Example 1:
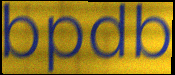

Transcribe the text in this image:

bpdb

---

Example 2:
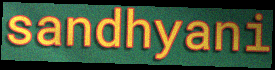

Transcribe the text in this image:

sandhyani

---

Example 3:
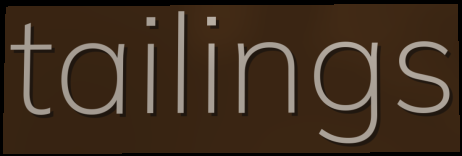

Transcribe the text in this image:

tailings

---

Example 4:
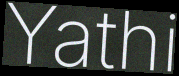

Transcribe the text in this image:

Yathi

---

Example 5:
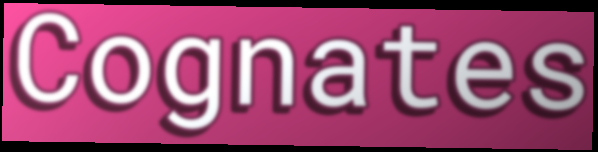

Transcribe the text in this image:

Cognates